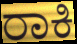
ರಾಕಿ